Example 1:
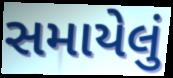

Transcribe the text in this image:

સમાયેલું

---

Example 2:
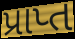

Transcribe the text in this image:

પ્રાપ્ત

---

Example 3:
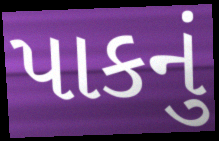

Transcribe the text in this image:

પાકનું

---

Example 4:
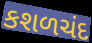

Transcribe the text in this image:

કશળચંદ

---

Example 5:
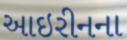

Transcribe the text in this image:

આઇરીનના